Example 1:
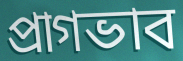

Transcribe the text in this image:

প্রাগভাব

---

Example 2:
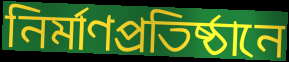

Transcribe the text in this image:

নির্মাণপ্রতিষ্ঠানে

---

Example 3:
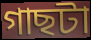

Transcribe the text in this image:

গাছটা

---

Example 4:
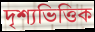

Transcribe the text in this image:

দৃশ্যভিত্তিক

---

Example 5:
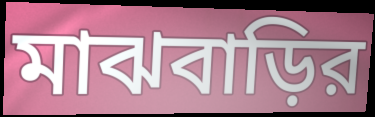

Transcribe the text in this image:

মাঝবাড়ির